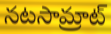
నటసామ్రాట్